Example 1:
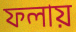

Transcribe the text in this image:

ফলায়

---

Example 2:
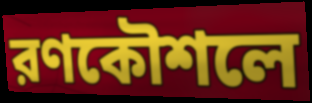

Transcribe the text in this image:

রণকৌশলে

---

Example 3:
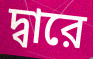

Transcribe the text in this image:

দ্বারে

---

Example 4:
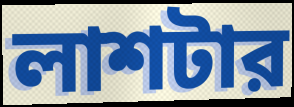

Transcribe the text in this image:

লাশটার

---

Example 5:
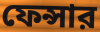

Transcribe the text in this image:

ফেন্সার